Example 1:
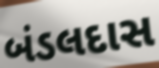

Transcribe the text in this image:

બંડલદાસ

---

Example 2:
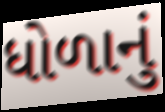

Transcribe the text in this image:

ધોળાનું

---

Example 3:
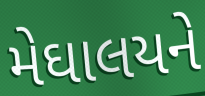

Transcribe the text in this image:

મેઘાલયને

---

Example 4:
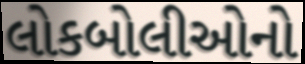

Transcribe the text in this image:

લોકબોલીઓનો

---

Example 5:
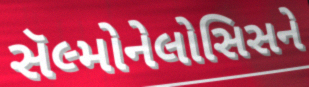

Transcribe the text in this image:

સૅલ્મોનેલોસિસને